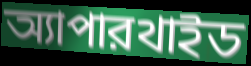
অ্যাপারথাইড